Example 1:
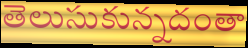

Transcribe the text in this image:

తెలుసుకున్నదంతా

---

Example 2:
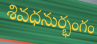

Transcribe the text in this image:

శివధనుర్భంగం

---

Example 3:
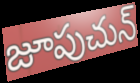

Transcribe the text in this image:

జూపుచున్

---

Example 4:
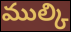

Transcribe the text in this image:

ముల్కి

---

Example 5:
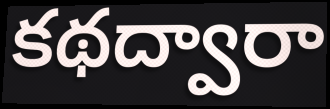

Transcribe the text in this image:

కథద్వారా